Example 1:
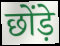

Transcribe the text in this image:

छोंड़े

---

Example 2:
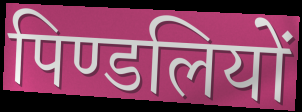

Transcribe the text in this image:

पिण्डलियों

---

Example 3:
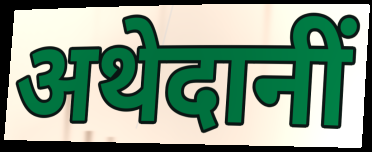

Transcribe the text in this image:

अथेदानीं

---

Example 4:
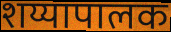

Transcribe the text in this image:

शय्यापालक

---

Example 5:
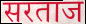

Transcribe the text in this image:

सरताज